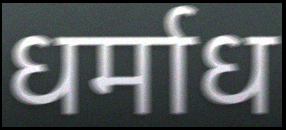
धर्माध